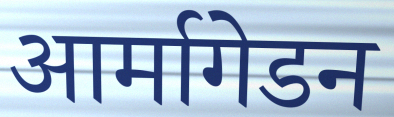
आर्मागेडन